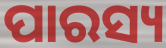
ପାରସ୍ୟ